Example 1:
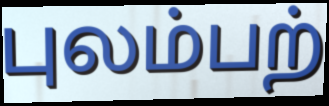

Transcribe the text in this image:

புலம்பற்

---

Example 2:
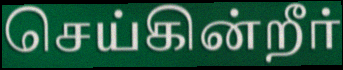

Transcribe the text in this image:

செய்கின்றீர்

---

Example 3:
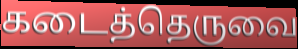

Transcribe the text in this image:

கடைத்தெருவை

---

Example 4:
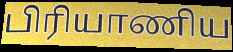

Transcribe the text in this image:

பிரியாணிய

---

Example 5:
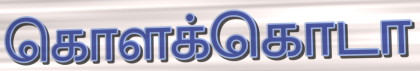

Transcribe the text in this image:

கொளக்கொடா